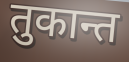
तुकान्त